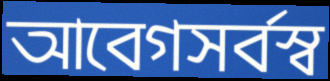
আবেগসর্বস্ব